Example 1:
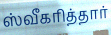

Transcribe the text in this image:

ஸ்வீகரித்தார்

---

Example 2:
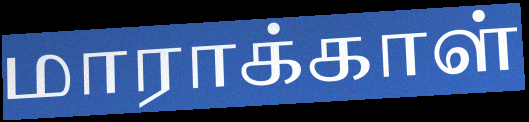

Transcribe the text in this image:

மாராக்காள்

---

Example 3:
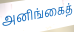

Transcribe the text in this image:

அனிங்கைத்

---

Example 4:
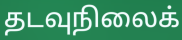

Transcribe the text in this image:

தடவுநிலைக்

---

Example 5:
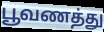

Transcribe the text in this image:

பூவணத்து